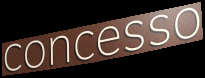
concesso